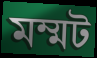
মম্মট